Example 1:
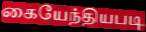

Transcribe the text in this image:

கையேந்தியபடி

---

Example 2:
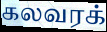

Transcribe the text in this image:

கலவரக்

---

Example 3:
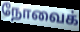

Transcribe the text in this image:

நோவைக்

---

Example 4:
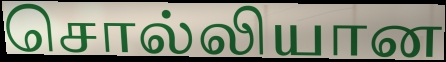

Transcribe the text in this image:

சொல்லியான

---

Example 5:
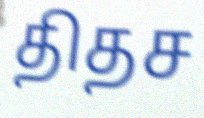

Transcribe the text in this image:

திதச